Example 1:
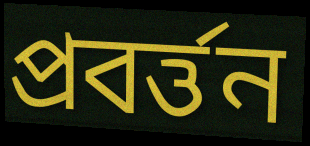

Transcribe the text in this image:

প্ৰবৰ্ত্তন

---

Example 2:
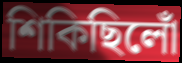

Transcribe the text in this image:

শিকিছিলোঁ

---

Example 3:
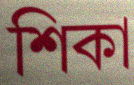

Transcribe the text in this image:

শিকা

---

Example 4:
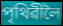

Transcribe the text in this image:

পৃথিৱীলৈ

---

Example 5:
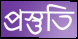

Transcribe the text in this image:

প্ৰস্তুতি